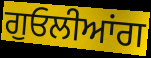
ਗੁਓਲੀਆਂਗ